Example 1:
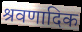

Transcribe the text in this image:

श्रवणादिक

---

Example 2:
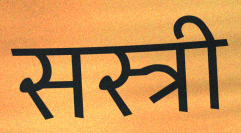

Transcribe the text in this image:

सस्त्री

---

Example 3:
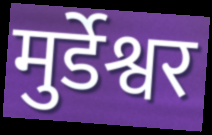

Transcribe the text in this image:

मुर्डेश्वर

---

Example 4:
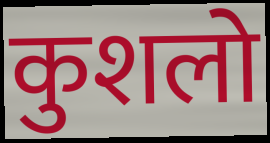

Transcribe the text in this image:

कुशलो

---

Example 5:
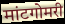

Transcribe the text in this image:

मांटगोमरी